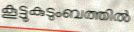
കൂട്ടുകുടുംബത്തിൽ